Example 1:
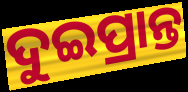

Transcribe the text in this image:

ଦୁଇପ୍ରାନ୍ତ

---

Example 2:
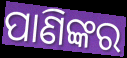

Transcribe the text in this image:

ପାଣିଙ୍କର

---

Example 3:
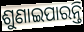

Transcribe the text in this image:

ଶୁଣାଇପାରନ୍ତି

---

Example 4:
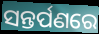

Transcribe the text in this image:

ସନ୍ତର୍ପଣରେ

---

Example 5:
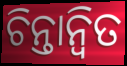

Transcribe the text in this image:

ଚିନ୍ତାନ୍ୱିତ